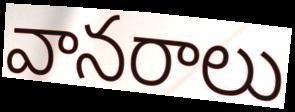
వానరాలు